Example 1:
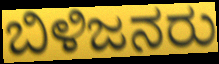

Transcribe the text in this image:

ಬಿಳಿಜನರು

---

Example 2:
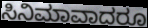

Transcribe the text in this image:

ಸಿನಿಮಾವಾದರೂ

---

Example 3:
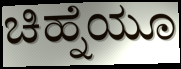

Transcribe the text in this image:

ಚಿಹ್ನೆಯೂ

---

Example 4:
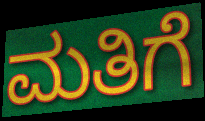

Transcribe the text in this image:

ಮತಿಗೆ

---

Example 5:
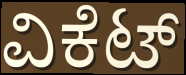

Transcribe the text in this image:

ವಿಕೆಟ್